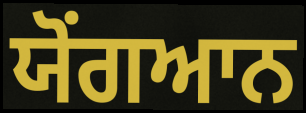
ਯੋਂਗਆਨ